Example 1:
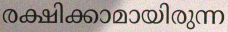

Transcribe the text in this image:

രക്ഷിക്കാമായിരുന്ന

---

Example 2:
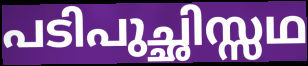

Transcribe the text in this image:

പടിപുച്ഛിസ്സഥ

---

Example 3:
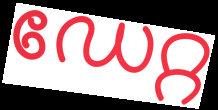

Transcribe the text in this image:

ഡേറ്റ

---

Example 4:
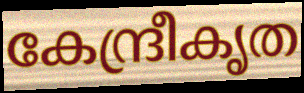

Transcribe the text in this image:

കേന്ദ്രീകൃത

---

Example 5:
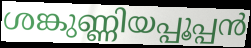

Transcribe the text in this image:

ശങ്കുണ്ണിയപ്പൂപ്പൻ